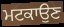
ਮਟਕਾਉਣ